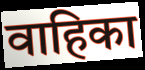
वाहिका